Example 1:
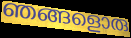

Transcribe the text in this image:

ഞങ്ങളൊരു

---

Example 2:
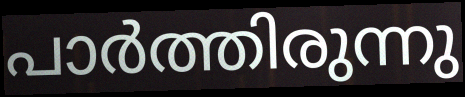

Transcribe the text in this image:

പാർത്തിരുന്നു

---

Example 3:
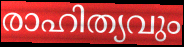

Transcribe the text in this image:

രാഹിത്യവും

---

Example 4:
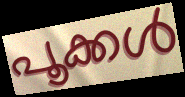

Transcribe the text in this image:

പൂക്കൾ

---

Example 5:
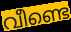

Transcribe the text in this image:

വീണ്ടെ